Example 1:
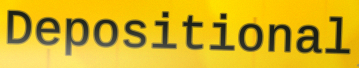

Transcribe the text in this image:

Depositional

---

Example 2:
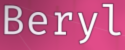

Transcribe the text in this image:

Beryl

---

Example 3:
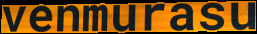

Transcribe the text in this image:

venmurasu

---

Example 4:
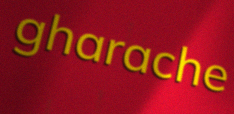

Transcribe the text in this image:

gharache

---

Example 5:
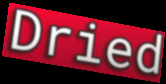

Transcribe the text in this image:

Dried